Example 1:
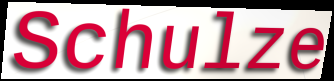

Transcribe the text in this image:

Schulze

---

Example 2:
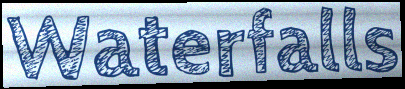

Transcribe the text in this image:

Waterfalls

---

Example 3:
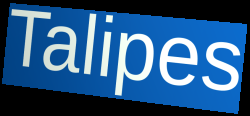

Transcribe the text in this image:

Talipes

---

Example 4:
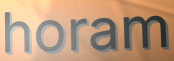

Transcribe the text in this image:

horam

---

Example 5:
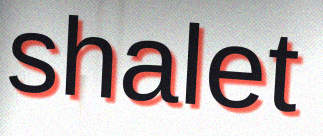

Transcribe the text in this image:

shalet